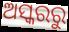
ଅସ୍କରରୁ